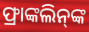
ଫ୍ରାଙ୍କଲିନ୍‌ଙ୍କ